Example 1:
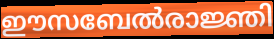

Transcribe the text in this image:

ഈസബേൽരാജ്ഞി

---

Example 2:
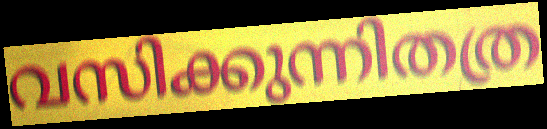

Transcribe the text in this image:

വസിക്കുന്നിതത്ര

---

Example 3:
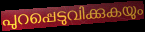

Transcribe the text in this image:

പുറപ്പെടുവിക്കുകയും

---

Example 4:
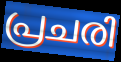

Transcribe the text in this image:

പ്രചരി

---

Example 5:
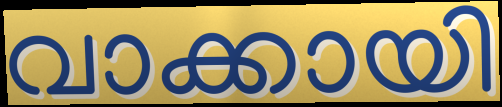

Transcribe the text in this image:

വാക്കായി